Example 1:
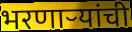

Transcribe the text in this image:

भरणाऱ्यांची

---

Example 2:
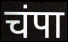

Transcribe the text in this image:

चंपा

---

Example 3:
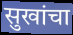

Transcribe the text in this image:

सुखांचा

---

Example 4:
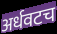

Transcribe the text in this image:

अर्धवटच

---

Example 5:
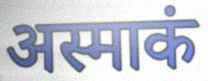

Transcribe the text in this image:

अस्माकं